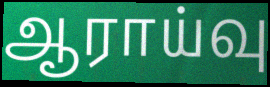
ஆராய்வு